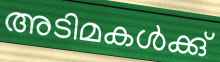
അടിമകൾക്കു്